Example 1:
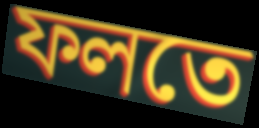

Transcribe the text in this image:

ফলতে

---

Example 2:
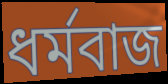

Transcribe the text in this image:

ধর্মবাজ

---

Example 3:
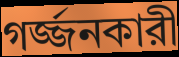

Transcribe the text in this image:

গর্জ্জনকারী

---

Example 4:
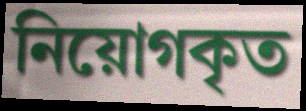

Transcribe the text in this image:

নিয়োগকৃত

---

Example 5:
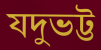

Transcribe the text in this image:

যদুভট্ট